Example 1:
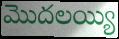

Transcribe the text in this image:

మొదలయ్యి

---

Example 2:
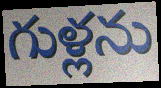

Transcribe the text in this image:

గుళ్లను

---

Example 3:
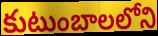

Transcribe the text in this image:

కుటుంబాలలోని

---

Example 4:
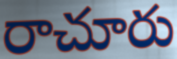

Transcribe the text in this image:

రాచూరు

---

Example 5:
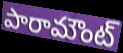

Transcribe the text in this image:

పారామౌంట్